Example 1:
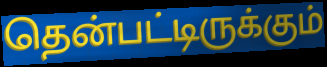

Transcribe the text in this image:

தென்பட்டிருக்கும்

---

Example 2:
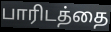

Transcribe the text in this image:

பாரிடத்தை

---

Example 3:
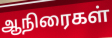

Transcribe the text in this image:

ஆநிரைகள்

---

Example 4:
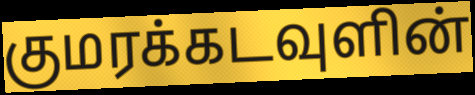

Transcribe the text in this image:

குமரக்கடவுளின்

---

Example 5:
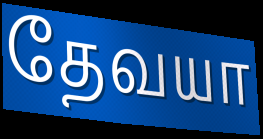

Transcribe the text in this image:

தேவயா